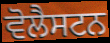
ਵੋਲੈਸਟਨ